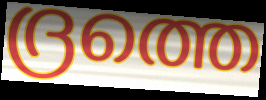
ദ്രത്തെ